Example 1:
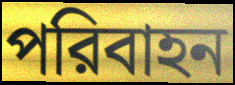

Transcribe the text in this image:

পরিবাহন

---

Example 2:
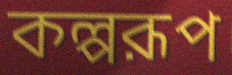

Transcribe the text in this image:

কল্পরূপ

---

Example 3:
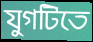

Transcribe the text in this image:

যুগটিতে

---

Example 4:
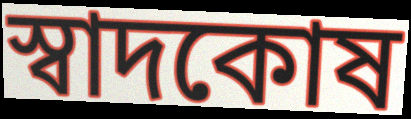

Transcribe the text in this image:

স্বাদকোষ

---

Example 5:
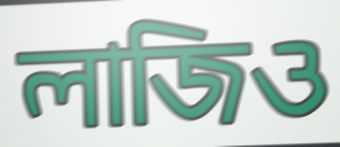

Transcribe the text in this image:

লাজিও